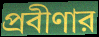
প্রবীণার